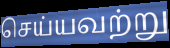
செய்யவற்று